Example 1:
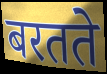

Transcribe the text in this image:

बरतते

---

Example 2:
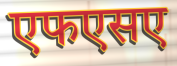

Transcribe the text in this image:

एफएसए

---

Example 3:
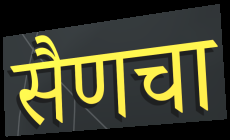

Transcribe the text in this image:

सैणचा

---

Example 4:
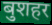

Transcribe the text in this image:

बुशहर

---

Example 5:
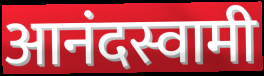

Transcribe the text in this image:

आनंदस्वामी